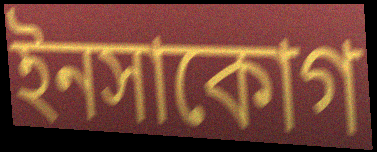
ইনসাকোগ